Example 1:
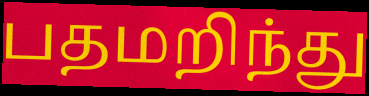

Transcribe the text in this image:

பதமறிந்து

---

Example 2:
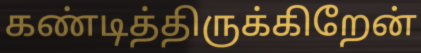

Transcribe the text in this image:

கண்டித்திருக்கிறேன்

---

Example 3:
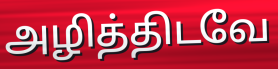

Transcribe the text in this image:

அழித்திடவே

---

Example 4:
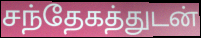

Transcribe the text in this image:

சந்தேகத்துடன்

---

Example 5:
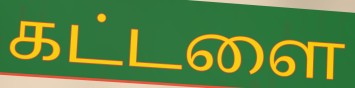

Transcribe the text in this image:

கட்டளை